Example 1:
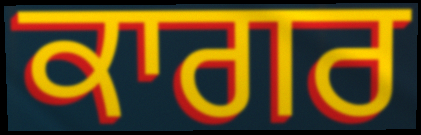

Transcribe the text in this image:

ਕਾਗਰ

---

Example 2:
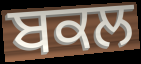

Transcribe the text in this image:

ਬਕਲ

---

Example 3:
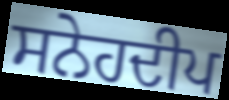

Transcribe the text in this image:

ਸਨੇਹਦੀਪ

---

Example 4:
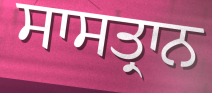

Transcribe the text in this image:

ਸਾਸਤ੍ਰਾਨ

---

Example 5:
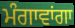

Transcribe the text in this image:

ਮੰਗਾਵਾਂਗਾ